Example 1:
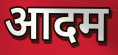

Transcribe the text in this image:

आदम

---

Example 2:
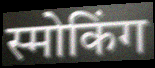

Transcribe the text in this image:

स्‍मोकिंग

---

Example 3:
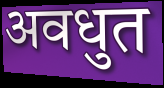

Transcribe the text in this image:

अवधुत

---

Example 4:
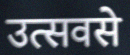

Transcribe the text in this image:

उत्सवसे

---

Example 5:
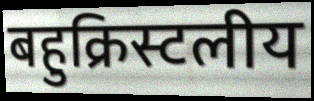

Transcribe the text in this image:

बहुक्रिस्टलीय